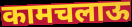
कामचलाऊ